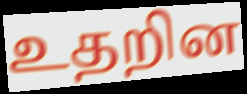
உதறின